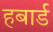
हबार्ड